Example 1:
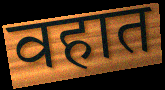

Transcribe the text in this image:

वहात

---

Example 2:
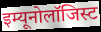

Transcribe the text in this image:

इम्यूनोलॉजिस्ट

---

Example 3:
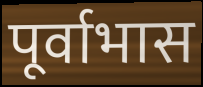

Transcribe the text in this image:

पूर्वाभास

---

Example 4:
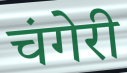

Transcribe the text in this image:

चंगेरी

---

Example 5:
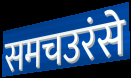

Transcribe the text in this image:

समचउरंसे